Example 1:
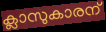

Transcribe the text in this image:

ക്ലാസുകാരന്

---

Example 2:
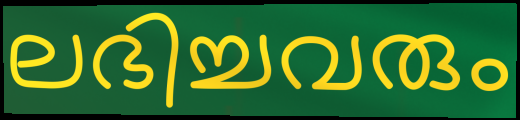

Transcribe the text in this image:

ലഭിച്ചവരും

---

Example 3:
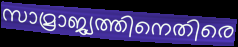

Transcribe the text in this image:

സാമ്രാജ്യത്തിനെതിരെ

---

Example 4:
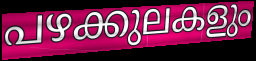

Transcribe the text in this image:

പഴക്കുലകളും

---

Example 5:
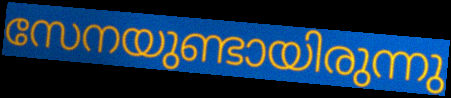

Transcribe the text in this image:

സേനയുണ്ടായിരുന്നു